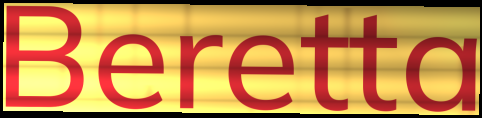
Beretta